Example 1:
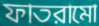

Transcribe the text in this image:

ফাতরামো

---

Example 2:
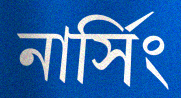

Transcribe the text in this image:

নার্সিং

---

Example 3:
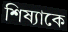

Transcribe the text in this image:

শিষ্যাকে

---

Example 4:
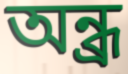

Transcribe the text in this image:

অন্ধ্র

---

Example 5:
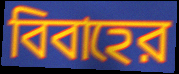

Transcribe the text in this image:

বিবাহের